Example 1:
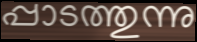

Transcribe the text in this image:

പ്പാടത്തുന്നു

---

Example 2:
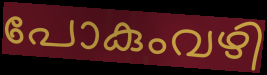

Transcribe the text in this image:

പോകുംവഴി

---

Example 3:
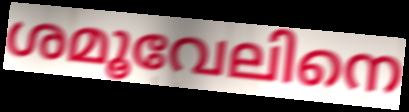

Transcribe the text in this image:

ശമൂവേലിനെ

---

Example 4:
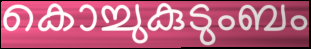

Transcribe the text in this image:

കൊച്ചുകുടുംബം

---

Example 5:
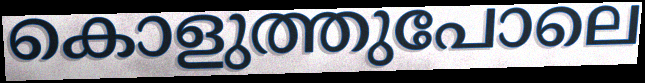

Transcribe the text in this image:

കൊളുത്തുപോലെ